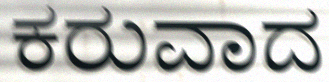
ಕರುವಾದ